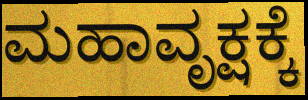
ಮಹಾವೃಕ್ಷಕ್ಕೆ